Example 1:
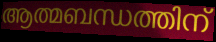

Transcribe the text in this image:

ആത്മബന്ധത്തിന്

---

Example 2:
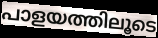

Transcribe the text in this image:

പാളയത്തിലൂടെ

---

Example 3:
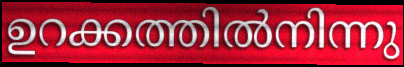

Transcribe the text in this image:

ഉറക്കത്തിൽനിന്നു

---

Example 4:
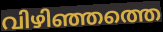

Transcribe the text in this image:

വിഴിഞ്ഞത്തെ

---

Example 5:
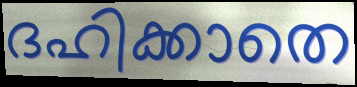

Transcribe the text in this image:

ദഹിക്കാതെ